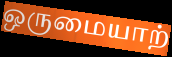
ஒருமையாற்